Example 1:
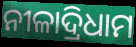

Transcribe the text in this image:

ନୀଳାଦ୍ରିଧାମ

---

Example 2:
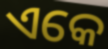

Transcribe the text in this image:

ଏକେ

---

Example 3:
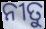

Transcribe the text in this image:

ନୀତୁ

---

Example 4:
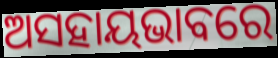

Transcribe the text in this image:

ଅସହାୟଭାବରେ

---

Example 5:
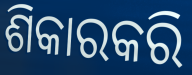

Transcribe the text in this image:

ଶିକାରକରି